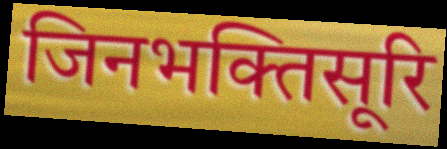
जिनभक्तिसूरि